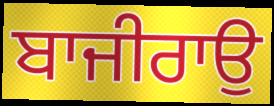
ਬਾਜੀਰਾਉ